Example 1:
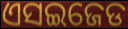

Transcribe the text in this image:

ଏସଇଜେଡ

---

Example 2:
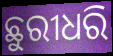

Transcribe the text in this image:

ଛୁରୀଧରି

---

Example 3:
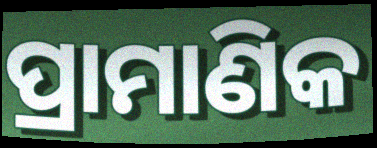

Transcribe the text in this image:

ପ୍ରାମାଣିକ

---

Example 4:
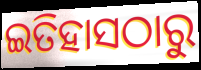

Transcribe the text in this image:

ଇତିହାସଠାରୁ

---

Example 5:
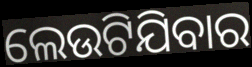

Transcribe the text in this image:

ଲେଉଟିଯିବାର